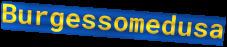
Burgessomedusa